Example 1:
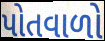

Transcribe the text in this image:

પોતવાળો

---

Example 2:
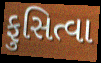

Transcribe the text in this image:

ફુસિત્વા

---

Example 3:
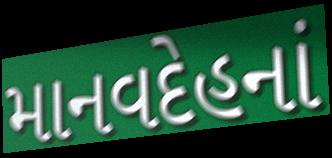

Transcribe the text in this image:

માનવદેહનાં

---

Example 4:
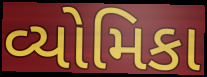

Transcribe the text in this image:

વ્યોમિકા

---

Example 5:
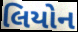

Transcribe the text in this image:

લિયોન